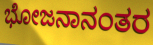
ಭೋಜನಾನಂತರ